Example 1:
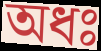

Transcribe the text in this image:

অধঃ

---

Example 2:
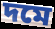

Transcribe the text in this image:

দমে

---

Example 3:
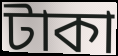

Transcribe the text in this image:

টাকা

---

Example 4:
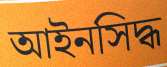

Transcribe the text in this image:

আইনসিদ্ধ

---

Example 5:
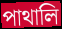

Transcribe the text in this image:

পাথালি